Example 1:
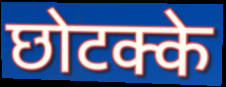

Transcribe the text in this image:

छोटक्के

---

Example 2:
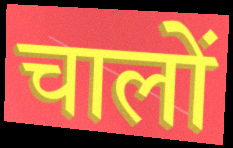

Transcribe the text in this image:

चालों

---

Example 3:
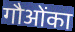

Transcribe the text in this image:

गौओंका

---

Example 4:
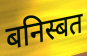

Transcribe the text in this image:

बनिस्बत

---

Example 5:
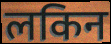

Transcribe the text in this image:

लकिन